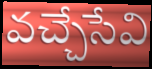
వచ్చేసేవి